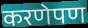
करणेपण